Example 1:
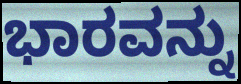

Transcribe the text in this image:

ಭಾರವನ್ನು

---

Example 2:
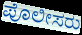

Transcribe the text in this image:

ಪೊಲೀಸರು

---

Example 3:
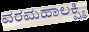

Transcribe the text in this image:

ವರಮಹಾಲಕ್ಷ್ಮಿ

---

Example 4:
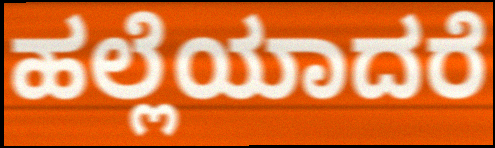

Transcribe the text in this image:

ಹಲ್ಲೆಯಾದರೆ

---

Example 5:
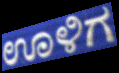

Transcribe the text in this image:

ಊಳಿಗ